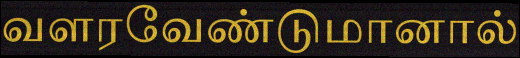
வளரவேண்டுமானால்